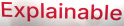
Explainable